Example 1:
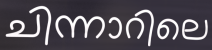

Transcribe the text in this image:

ചിന്നാറിലെ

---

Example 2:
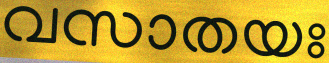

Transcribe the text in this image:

വസാതയഃ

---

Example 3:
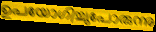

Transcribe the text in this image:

ഉപയോഗിച്ചുപോരുന്നു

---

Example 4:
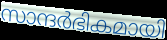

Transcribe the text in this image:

സാന്ദർഭികമായി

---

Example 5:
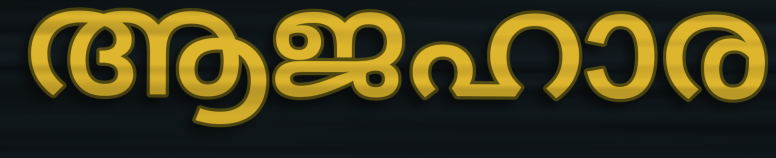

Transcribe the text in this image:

ആജഹാര